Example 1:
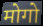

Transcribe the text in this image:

मोगो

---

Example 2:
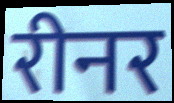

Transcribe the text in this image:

रीनर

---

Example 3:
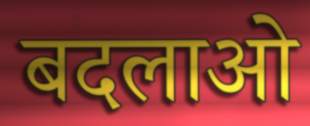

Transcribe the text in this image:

बदलाओ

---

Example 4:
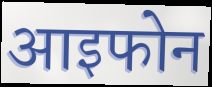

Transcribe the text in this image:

आइफोन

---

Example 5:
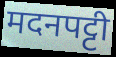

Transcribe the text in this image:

मदनपट्टी